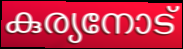
കുര്യനോട്